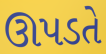
ઊપડતે